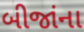
બીજાંના